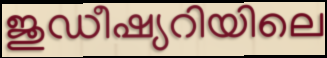
ജുഡീഷ്യറിയിലെ